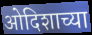
ओदिशाच्या